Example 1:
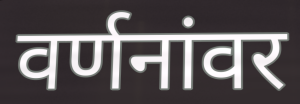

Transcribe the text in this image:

वर्णनांवर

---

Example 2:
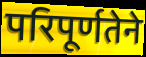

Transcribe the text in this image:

परिपूर्णतेने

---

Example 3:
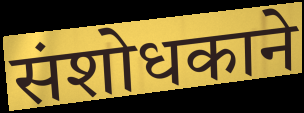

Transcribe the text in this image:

संशोधकाने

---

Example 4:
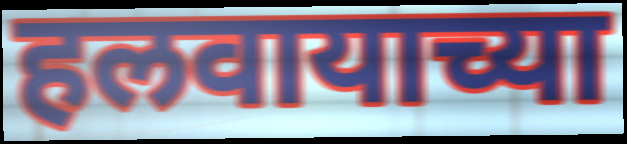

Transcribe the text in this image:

हलवायाच्या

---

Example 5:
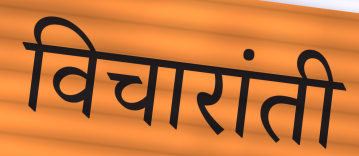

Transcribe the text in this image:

विचारांती